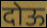
दोऊ